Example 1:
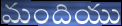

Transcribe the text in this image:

మందియు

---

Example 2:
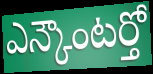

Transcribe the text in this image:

ఎన్కౌంటర్తో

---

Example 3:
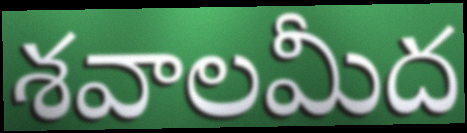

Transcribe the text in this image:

శవాలమీద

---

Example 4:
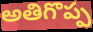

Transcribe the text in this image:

అతిగొప్ప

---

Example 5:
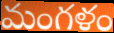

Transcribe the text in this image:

మంగళం